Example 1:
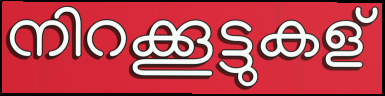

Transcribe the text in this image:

നിറക്കൂട്ടുകള്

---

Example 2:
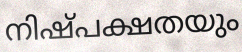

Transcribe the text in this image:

നിഷ്പക്ഷതയും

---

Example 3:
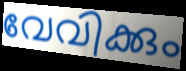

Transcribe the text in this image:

വേവിക്കും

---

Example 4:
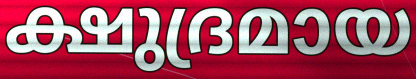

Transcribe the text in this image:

ക്ഷുദ്രമായ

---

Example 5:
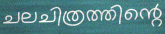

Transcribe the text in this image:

ചലചിത്രത്തിന്റെ